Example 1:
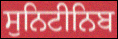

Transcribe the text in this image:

ਸੁਨਿਟੀਨਿਬ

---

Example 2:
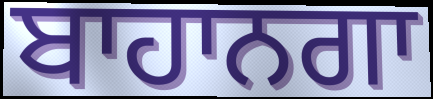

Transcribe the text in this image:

ਬਾਹਾਨਗਾ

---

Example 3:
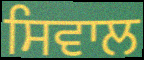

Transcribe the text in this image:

ਸਿਵਾਲ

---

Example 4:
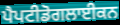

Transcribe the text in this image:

ਪੈਪਟੀਡੋਗਲਾਈਕਨ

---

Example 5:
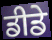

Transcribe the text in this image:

ਡੀਡੇ